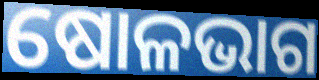
ଷୋଳଭାଗ